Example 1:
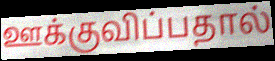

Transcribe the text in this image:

ஊக்குவிப்பதால்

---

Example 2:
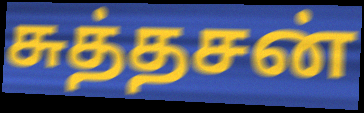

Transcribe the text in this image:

சுத்தசன்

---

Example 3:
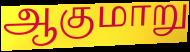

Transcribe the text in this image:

ஆகுமாறு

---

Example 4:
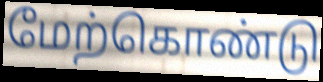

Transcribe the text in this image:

மேற்கொண்டு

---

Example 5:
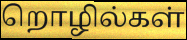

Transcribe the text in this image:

றொழில்கள்